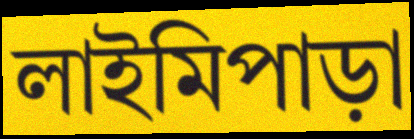
লাইমিপাড়া